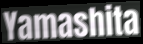
Yamashita